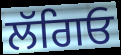
ਲੱਗਿਓ